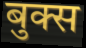
बुक्‍स